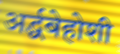
अर्द्धबेहोशी